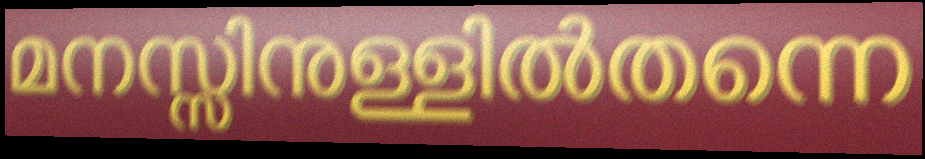
മനസ്സിനുള്ളിൽതന്നെ